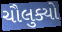
ચૌલુક્યો